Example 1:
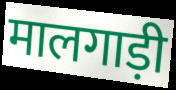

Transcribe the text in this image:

मालगाड़ी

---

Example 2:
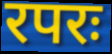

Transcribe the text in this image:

रपरः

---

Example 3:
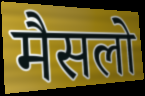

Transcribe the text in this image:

मैसलो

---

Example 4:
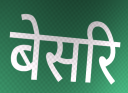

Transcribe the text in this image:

बेसरि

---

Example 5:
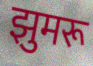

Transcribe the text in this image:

झुमरू